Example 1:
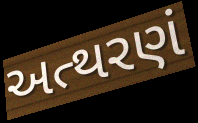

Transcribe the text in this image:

અત્થરણં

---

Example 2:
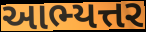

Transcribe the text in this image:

આભ્યત્તર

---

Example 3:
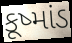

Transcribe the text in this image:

કૂષ્માંડ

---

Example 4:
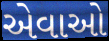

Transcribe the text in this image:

એવાઓ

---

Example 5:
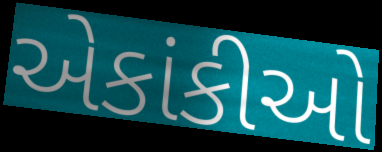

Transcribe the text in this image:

એકાંકીઓ